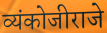
व्यंकोजीराजे